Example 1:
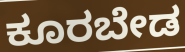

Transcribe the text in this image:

ಕೂರಬೇಡ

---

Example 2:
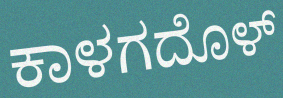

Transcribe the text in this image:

ಕಾಳಗದೊಳ್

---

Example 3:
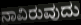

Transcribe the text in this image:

ನಾವಿರುವುದು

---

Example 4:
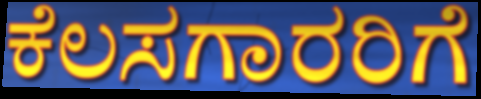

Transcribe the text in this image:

ಕೆಲಸಗಾರರಿಗೆ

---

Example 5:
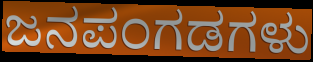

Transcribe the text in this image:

ಜನಪಂಗಡಗಳು